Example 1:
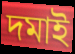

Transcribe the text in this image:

দমাই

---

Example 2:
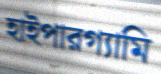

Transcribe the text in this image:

হাইপারগ্যামি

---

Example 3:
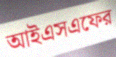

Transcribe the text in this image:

আইএসএফের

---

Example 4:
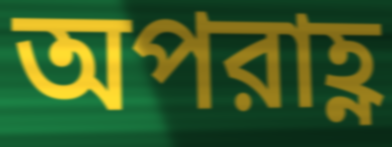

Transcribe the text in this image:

অপরাহ্ণ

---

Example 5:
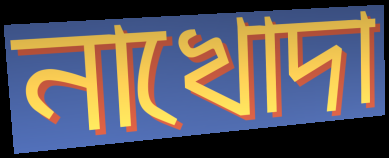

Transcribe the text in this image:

নাখোদা